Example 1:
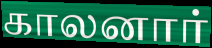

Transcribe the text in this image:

காலனார்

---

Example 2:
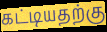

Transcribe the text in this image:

கட்டியதற்கு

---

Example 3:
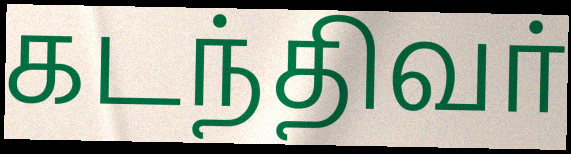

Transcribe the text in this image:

கடந்திவர்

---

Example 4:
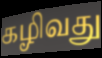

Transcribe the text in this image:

கழிவது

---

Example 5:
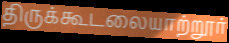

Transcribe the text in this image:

திருக்கூடலையாற்றூர்